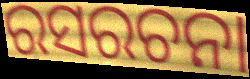
ରସରଚନା